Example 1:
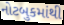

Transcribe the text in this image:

નોટબુકમાંથી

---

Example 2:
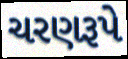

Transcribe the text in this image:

ચરણરૂપે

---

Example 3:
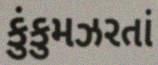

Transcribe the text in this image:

કુંકુમઝરતાં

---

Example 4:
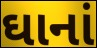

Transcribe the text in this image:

ઘાનાં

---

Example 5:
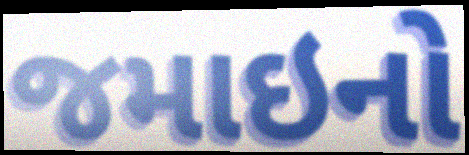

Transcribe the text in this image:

જમાઇનો